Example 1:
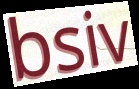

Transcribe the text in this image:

bsiv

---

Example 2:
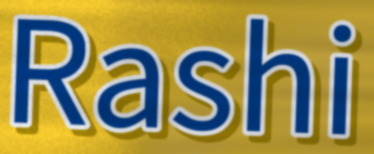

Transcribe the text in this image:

Rashi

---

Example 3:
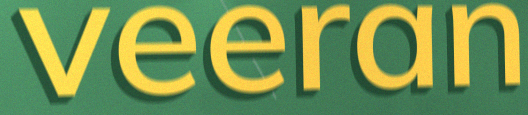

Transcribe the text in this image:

veeran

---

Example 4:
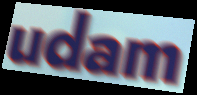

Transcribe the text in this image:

udam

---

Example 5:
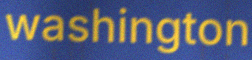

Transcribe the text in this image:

washington